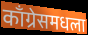
काँग्रेसमधला